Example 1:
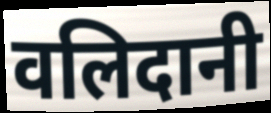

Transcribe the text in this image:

वलिदानी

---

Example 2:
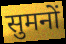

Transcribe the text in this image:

सुमनों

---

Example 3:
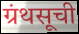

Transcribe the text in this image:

ग्रंथसूची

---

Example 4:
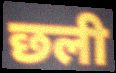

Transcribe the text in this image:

छली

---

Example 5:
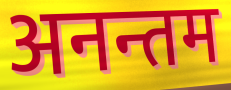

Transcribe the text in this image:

अनन्तम